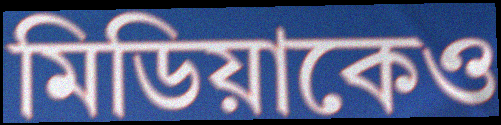
মিডিয়াকেও